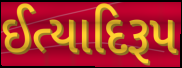
ઈત્યાદિરૂપ